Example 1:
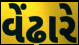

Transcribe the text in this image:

વેંઢારે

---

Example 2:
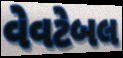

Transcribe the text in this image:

વેવટેબલ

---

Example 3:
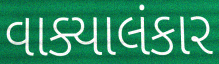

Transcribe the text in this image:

વાક્યાલંકાર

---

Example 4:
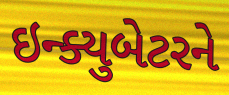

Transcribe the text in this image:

ઇન્ક્યુબેટરને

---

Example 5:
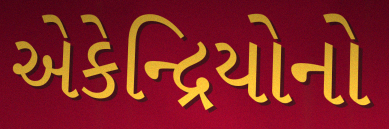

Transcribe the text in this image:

એકેન્દ્રિયોનો